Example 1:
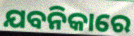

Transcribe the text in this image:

ଯବନିକାରେ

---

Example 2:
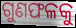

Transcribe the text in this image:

ଗୁଣଫଳକୁ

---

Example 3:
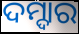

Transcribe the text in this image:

ଦମ୍ଦାର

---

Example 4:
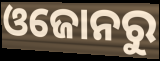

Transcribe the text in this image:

ଓଜୋନରୁ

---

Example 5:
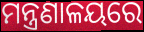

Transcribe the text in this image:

ମନ୍ତ୍ରଣାଳୟରେ